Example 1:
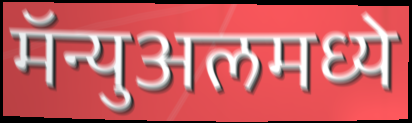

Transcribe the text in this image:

मॅन्युअलमध्ये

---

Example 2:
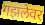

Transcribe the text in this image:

गझलेवर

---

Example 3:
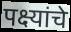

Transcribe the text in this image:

पक्ष्यांचे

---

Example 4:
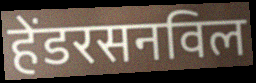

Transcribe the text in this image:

हेंडरसनविल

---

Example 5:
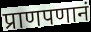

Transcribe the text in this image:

प्राणपणानं